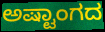
ಅಷ್ಟಾಂಗದ